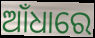
ଆଁଧାରେ